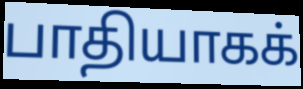
பாதியாகக்